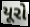
યૂરો